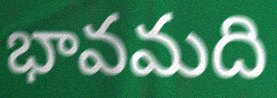
భావమది